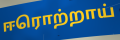
ஈரொற்றாய்